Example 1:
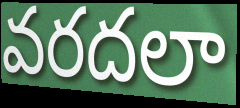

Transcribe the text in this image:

వరదలా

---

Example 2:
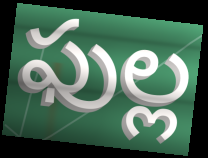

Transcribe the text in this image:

ఫుల్ల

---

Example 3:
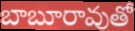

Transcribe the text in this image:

బాబూరావుతో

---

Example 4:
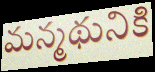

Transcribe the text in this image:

మన్మథునికి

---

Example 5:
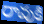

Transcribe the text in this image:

రావుకి